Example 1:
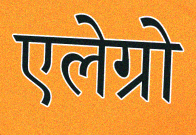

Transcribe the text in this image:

एलेग्रो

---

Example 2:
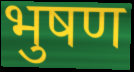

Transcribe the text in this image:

भुषण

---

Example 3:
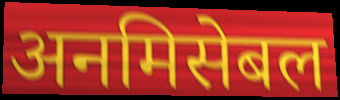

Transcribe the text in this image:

अनमिसेबल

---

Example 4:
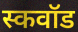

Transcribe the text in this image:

स्कवॉड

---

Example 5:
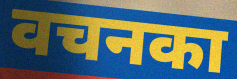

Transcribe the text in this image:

वचनका